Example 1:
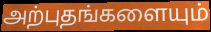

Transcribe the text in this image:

அற்புதங்களையும்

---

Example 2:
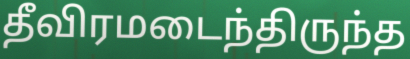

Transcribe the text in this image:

தீவிரமடைந்திருந்த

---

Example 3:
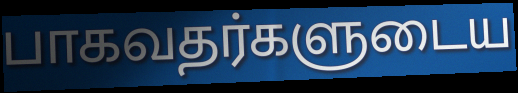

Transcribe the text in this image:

பாகவதர்களுடைய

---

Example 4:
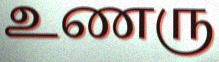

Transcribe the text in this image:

உணரு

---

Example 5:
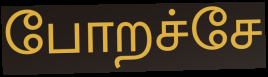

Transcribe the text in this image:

போறச்சே